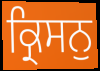
ਕ੍ਰਿਸਨੁ